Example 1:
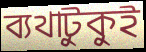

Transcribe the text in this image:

ব্যথাটুকুই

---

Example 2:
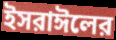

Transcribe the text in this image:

ইসরাঈলের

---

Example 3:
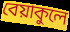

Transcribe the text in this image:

বেয়াকুলে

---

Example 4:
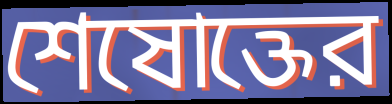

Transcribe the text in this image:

শেষোক্তের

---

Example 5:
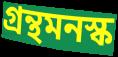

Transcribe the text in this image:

গ্রন্থমনস্ক